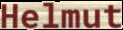
Helmut